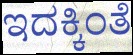
ಇದಕ್ಕಿಂತೆ